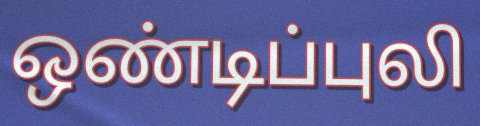
ஒண்டிப்புலி